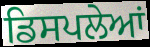
ਡਿਸਪਲੇਆਂ